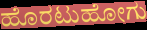
ಹೊರಟುಹೋಗು